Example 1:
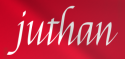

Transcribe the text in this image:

juthan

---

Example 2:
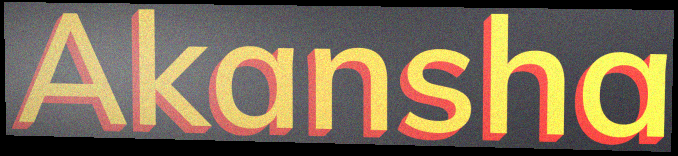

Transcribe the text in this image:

Akansha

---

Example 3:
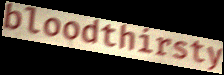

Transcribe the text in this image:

bloodthirsty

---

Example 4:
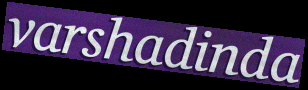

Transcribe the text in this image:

varshadinda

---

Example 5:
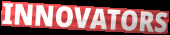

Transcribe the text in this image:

INNOVATORS